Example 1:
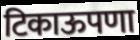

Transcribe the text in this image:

टिकाऊपणा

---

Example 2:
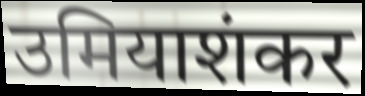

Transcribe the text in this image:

उमियाशंकर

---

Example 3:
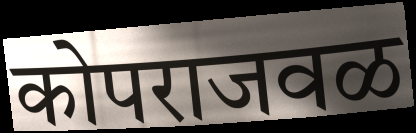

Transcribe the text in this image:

कोपराजवळ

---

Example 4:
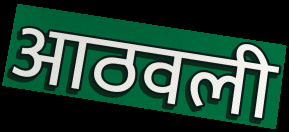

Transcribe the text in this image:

आठवली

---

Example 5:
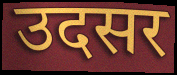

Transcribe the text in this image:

उदसर